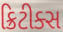
ક્રિટીક્સ